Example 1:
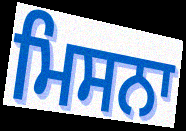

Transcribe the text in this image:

ਮਿਸਨਾ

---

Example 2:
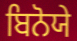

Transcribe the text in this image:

ਬਿਨੋਯੇ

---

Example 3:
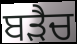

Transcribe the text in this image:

ਬੜੈਚ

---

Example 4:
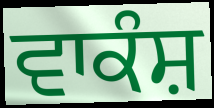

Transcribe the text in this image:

ਵਾਕੰਸ਼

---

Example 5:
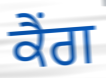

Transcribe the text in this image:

ਕੈਂਗ